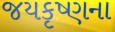
જયકૃષ્ણના